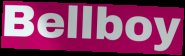
Bellboy